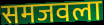
समजवला